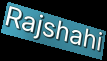
Rajshahi